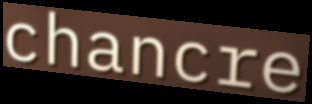
chancre